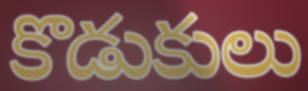
కొడుకులు